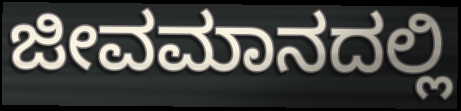
ಜೀವಮಾನದಲ್ಲಿ